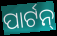
ପାର୍ଟନ୍